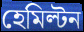
হেমিল্টন